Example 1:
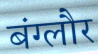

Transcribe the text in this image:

बंग्लौर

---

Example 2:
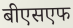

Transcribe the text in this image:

बीएसएफ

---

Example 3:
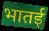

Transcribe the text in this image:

भातई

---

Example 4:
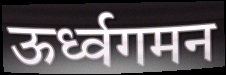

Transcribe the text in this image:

ऊर्ध्वगमन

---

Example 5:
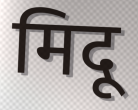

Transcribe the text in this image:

मिदू